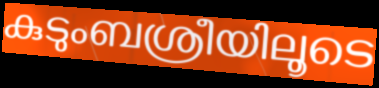
കുടുംബശ്രീയിലൂടെ